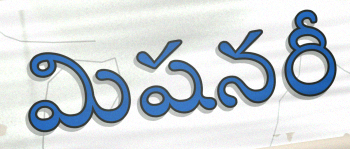
మిషనరీ